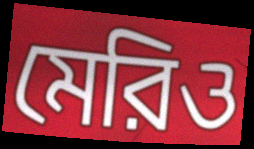
মেরিও